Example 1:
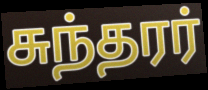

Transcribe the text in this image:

சுந்தரர்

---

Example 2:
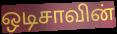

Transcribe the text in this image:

ஒடிசாவின்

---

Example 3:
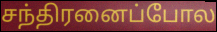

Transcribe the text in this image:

சந்திரனைப்போல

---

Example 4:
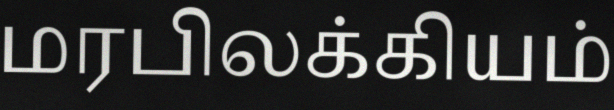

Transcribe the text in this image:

மரபிலக்கியம்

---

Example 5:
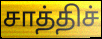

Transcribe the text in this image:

சாத்திச்